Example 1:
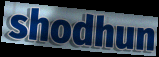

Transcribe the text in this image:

shodhun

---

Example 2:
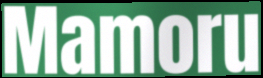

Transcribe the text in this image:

Mamoru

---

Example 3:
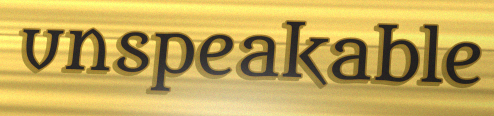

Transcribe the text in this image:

unspeakable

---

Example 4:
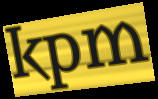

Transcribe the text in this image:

kpm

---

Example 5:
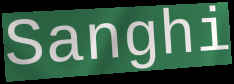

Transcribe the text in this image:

Sanghi